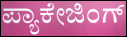
ಪ್ಯಾಕೇಜಿಂಗ್